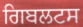
ਗਿਬਲਟਸ